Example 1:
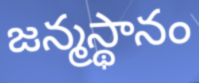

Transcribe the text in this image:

జన్మస్థానం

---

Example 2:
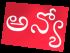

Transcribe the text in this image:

అన్యో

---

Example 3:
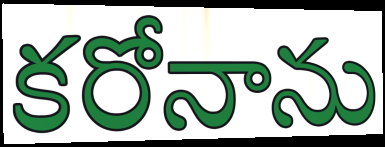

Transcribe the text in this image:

కరోనాను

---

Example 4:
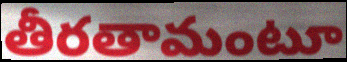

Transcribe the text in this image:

తీరతామంటూ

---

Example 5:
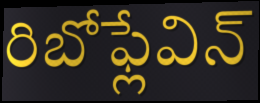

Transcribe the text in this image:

రిబోఫ్లేవిన్